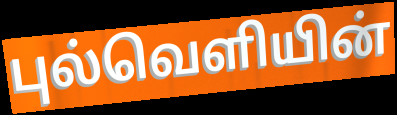
புல்வெளியின்